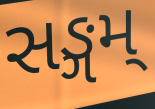
સઙ્ગમ્